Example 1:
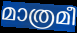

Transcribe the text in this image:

മാത്രമീ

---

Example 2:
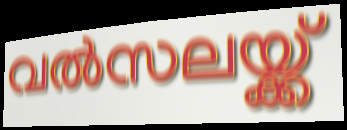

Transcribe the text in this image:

വൽസലയ്ക്ക്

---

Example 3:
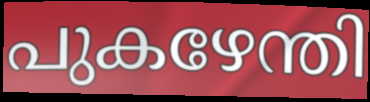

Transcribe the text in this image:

പുകഴേന്തി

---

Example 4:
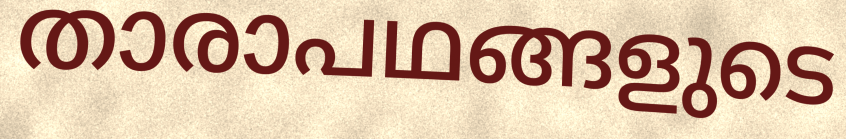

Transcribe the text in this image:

താരാപഥങ്ങളുടെ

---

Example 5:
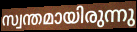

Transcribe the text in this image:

സ്വന്തമായിരുന്നു